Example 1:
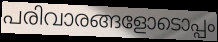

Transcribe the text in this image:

പരിവാരങ്ങളോടൊപ്പം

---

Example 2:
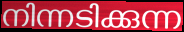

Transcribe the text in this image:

നിന്നടിക്കുന്ന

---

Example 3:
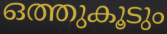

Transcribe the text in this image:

ഒത്തുകൂടും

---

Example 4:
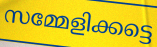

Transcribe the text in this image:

സമ്മേളിക്കട്ടെ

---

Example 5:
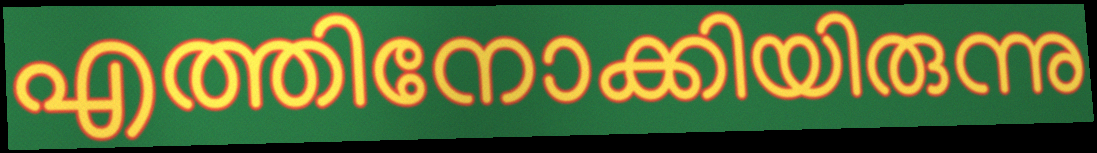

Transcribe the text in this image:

എത്തിനോക്കിയിരുന്നു